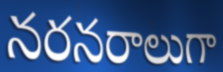
నరనరాలుగా